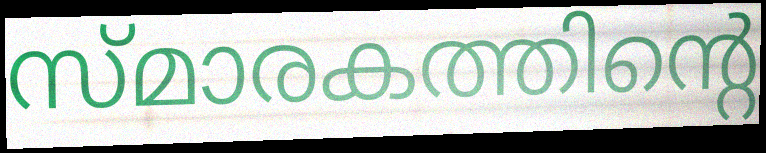
സ്മാരകത്തിന്റെ